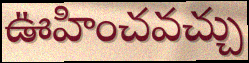
ఊహించవచ్చు